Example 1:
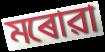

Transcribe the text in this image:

মৰোৱা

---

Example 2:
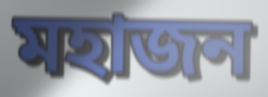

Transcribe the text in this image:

মহাজন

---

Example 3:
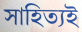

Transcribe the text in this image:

সাহিত্যই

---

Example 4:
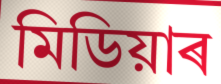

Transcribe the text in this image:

মিডিয়াৰ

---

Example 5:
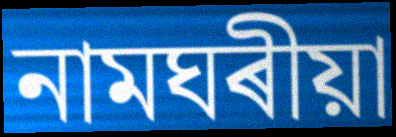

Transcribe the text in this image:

নামঘৰীয়া